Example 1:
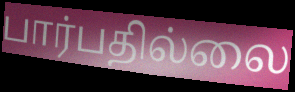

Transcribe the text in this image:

பார்பதில்லை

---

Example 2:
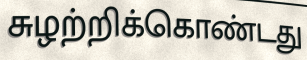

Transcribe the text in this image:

சுழற்றிக்கொண்டது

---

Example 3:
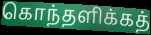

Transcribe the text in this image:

கொந்தளிக்கத்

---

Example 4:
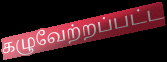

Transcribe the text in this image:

கழுவேற்றப்பட்ட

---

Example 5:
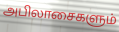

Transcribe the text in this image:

அபிலாசைகளும்